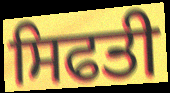
ਸਿਫਤੀ